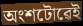
অংশটোৱেই